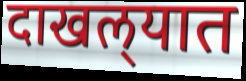
दाखल्यात